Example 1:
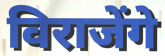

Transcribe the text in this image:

विराजेंगे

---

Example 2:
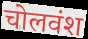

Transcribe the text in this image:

चोलवंश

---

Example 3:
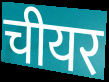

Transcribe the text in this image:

चीयर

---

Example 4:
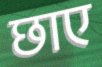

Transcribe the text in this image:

छाए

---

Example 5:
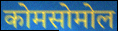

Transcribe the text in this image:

कोमसोमोल